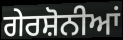
ਗੇਰਸ਼ੋਨੀਆਂ